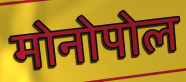
मोनोपोल